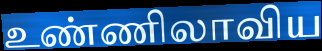
உண்ணிலாவிய